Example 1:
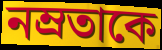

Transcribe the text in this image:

নম্রতাকে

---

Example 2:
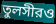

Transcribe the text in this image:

তুলসীরও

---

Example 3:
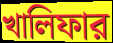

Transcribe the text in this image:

খালিফার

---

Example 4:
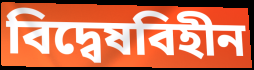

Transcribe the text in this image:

বিদ্বেষবিহীন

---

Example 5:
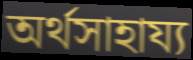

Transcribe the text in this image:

অর্থসাহায্য